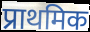
प्राथमिक